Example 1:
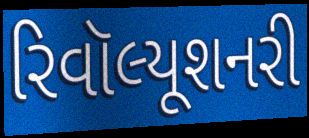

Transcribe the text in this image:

રિવૉલ્યૂશનરી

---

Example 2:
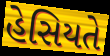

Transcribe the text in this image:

હેસિયતે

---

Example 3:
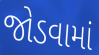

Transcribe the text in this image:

જોડવામાં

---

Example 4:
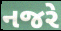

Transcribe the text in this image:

નજરે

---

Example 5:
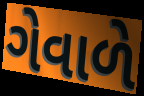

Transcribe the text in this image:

ગેવાળે